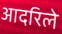
आदरिले